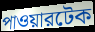
পাওয়ারটেক